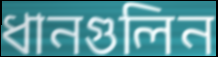
ধানগুলিন